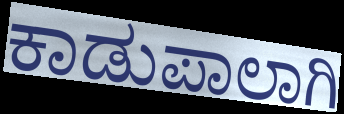
ಕಾಡುಪಾಲಾಗಿ